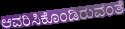
ಆವರಿಸಿಕೊಂಡಿರುವಂತೆ